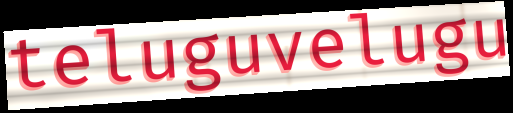
teluguvelugu